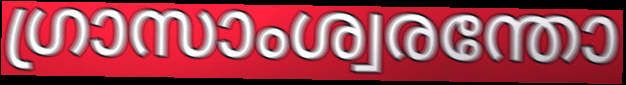
ഗ്രാസാംശ്വരന്തോ